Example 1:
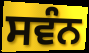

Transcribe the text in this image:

ਸਵੰਨ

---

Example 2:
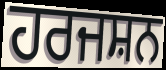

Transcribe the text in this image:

ਹਰਜਸ਼ਨ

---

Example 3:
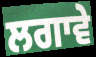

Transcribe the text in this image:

ਲਗਾਵੇ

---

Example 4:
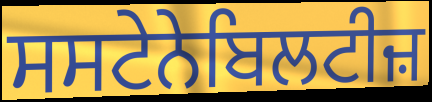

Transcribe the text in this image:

ਸਸਟੇਨੇਬਿਲਟੀਜ਼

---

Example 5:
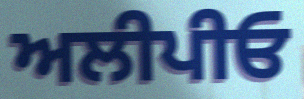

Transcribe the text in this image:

ਅਲੀਪੀਓ